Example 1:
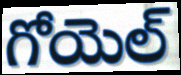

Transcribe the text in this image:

గోయెల్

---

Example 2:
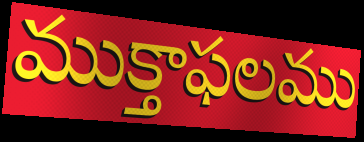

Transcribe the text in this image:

ముక్తాఫలము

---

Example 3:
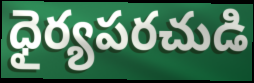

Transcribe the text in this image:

ధైర్యపరచుడి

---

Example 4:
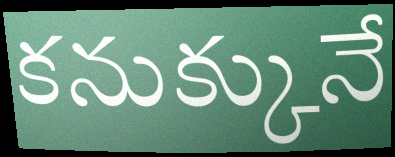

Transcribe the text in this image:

కనుక్కునే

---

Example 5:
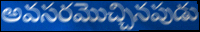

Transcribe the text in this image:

అవసరమొచ్చినపుడు